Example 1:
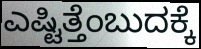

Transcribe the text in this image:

ಎಷ್ಟಿತ್ತೆಂಬುದಕ್ಕೆ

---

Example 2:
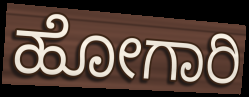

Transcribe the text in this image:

ಹೋಗಾರಿ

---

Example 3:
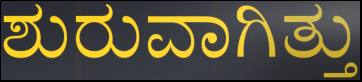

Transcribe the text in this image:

ಶುರುವಾಗಿತ್ತು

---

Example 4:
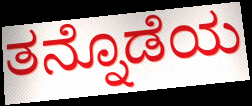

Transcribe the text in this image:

ತನ್ನೊಡೆಯ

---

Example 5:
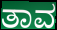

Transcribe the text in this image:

ತಾವ